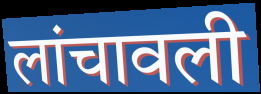
लांचावली